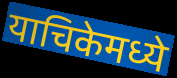
याचिकेमध्ये